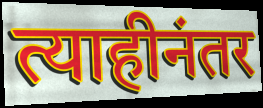
त्याहीनंतर